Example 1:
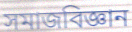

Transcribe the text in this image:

সমাজবিজ্ঞান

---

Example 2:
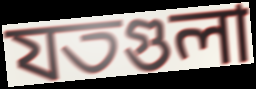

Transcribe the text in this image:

যতগুলা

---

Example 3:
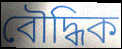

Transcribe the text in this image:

বৌদ্ধিক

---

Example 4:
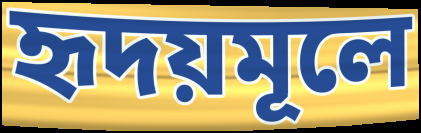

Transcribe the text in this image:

হৃদয়মূলে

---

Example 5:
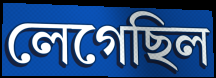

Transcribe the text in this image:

লেগেছিল